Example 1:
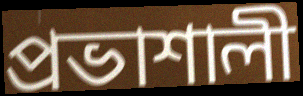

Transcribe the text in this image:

প্রভাশালী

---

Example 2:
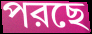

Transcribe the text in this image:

পরছে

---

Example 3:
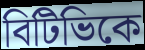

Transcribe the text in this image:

বিটিভিকে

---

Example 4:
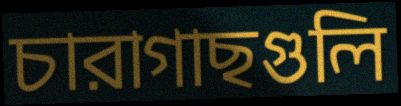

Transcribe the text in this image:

চারাগাছগুলি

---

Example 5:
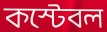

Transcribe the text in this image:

কস্টেবল